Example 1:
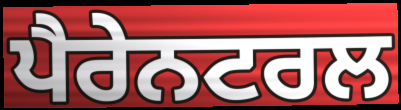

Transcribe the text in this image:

ਪੈਰੇਨਟਰਲ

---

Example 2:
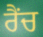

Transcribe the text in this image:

ਰੈਂਚ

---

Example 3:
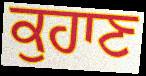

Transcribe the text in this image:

ਕੁਹਾਣ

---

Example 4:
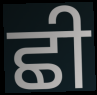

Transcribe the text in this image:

ਛੀ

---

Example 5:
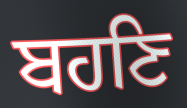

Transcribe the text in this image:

ਬਹਣਿ